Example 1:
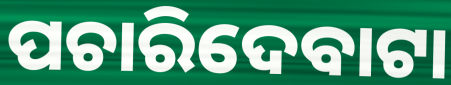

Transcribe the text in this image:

ପଚାରିଦେବାଟା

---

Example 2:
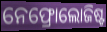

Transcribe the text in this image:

ନେଫ୍ରୋଲୋଜିଷ୍ଟ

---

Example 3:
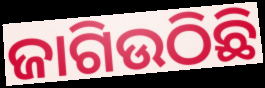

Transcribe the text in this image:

ଜାଗିଉଠିଛି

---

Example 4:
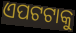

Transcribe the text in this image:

ଏପଟଟାକୁ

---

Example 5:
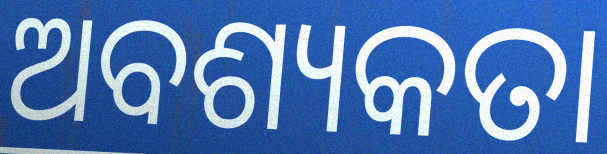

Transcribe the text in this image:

ଅବଶ୍ୟକତା